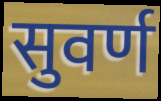
सुवर्ण